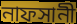
নাফসানী